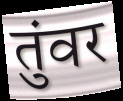
तुंवर